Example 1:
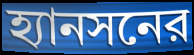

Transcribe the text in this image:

হ্যানসনের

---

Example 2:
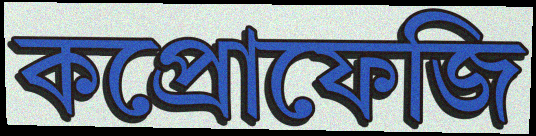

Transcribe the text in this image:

কপ্রোফেজি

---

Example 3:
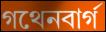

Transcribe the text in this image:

গথেনবার্গ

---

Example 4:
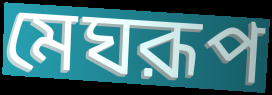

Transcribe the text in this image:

মেঘরূপ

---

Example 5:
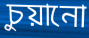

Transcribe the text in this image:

চুয়ানো